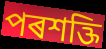
পৰশক্তি